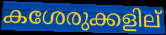
കശേരുക്കളില്